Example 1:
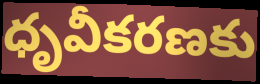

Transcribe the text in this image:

ధృవీకరణకు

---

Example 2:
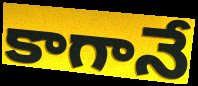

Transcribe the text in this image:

కాగానే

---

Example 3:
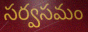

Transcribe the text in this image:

సర్వసమం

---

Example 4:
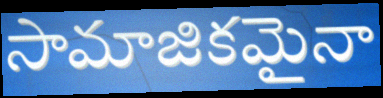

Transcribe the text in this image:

సామాజికమైనా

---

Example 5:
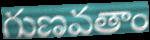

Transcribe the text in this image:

గుణవతాం